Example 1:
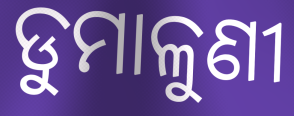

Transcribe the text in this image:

ଡୁମାଳୁଣୀ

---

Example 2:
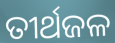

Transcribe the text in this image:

ତୀର୍ଥଜଳ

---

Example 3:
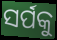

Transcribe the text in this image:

ସର୍ପକୁ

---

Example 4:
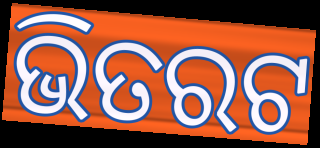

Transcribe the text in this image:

ଭିତରଟ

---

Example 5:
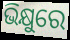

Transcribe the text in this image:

ଭିକ୍ଷୁରେ